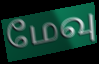
மேவு